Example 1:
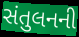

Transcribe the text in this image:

સંતુલનની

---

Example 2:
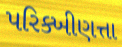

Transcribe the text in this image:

પરિક્ખીણત્તા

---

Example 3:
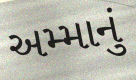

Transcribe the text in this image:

અમ્માનું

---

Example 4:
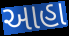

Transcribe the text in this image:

આહા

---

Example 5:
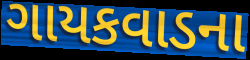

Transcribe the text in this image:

ગાયકવાડના